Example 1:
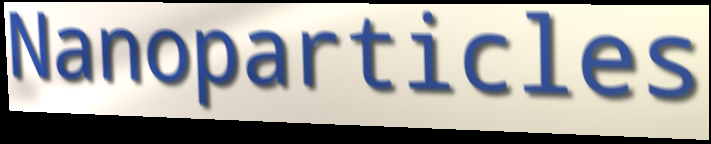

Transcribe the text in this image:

Nanoparticles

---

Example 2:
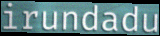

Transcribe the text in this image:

irundadu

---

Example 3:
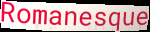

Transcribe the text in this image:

Romanesque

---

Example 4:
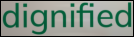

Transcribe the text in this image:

dignified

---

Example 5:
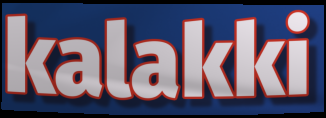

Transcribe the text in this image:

kalakki